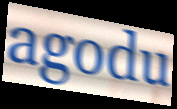
agodu